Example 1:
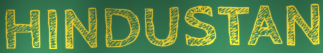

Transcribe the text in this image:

HINDUSTAN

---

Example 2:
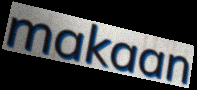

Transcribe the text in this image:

makaan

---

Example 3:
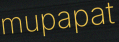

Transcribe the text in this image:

mupapat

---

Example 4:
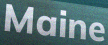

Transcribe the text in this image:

Maine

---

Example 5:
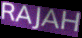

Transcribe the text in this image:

RAJAH